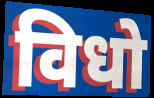
विधो